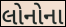
લોનોના